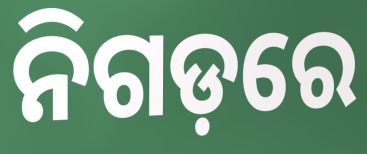
ନିଗଡ଼ରେ